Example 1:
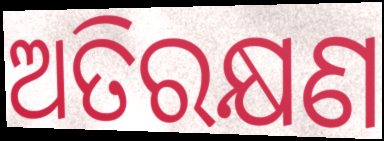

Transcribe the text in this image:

ଅତିରକ୍ଷଣ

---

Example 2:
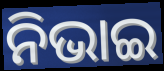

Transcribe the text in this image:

ନିଭାଇ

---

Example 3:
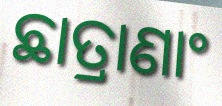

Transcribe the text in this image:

ଛାତ୍ରାଣାଂ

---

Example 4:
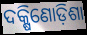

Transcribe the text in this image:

ଦକ୍ଷିଣୋଡ଼ିଶା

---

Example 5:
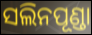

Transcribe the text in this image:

ସଲିନପୂଣ୍ଡା